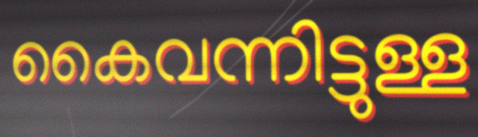
കൈവന്നിട്ടുള്ള